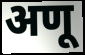
अणू